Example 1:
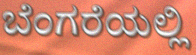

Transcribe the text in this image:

ಬೆಂಗರೆಯಲ್ಲಿ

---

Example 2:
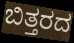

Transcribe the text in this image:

ಬಿತ್ತರದ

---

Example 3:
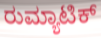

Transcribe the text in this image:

ರುಮ್ಯಾಟಿಕ್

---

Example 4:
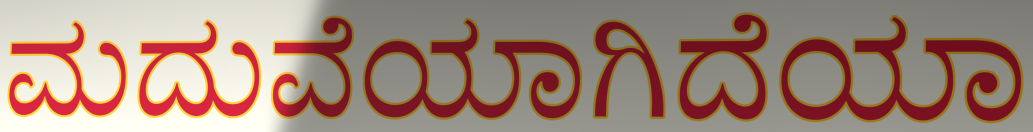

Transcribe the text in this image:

ಮದುವೆಯಾಗಿದೆಯಾ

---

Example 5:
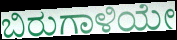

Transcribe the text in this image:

ಬಿರುಗಾಳಿಯೇ